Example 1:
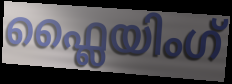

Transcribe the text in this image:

ഫ്ലൈയിംഗ്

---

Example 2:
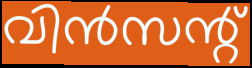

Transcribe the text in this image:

വിൻസന്റ്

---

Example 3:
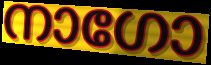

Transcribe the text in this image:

നാഗോ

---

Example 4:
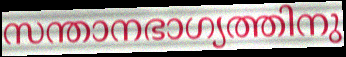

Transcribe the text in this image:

സന്താനഭാഗ്യത്തിനു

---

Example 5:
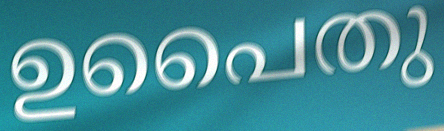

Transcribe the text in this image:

ഉപൈതു